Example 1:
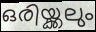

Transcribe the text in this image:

ഒരിയ്ക്കലും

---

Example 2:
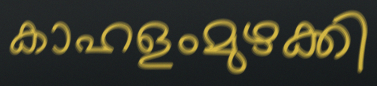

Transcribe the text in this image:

കാഹളംമുഴക്കി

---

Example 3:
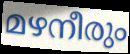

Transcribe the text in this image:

മഴനീരും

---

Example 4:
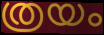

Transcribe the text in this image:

ത്രയം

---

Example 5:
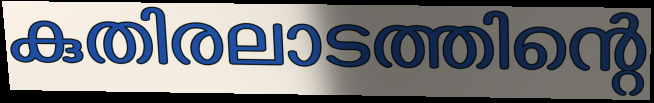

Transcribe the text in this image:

കുതിരലാടത്തിന്റെ